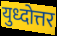
युध्दोत्तर